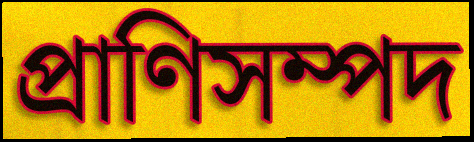
প্রাণিসম্পদ